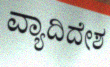
ವ್ಯಾದಿದೇಶ